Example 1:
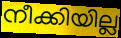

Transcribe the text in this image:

നീക്കിയില്ല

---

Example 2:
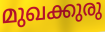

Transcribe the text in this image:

മുഖക്കുരു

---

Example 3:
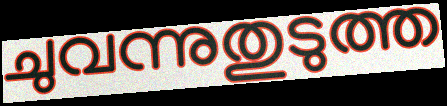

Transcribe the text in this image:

ചുവന്നുതുടുത്ത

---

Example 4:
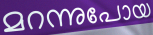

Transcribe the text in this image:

മറന്നുപോയ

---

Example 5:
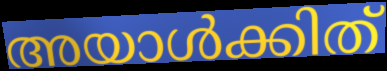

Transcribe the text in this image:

അയാൾക്കിത്